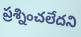
ప్రశ్నించలేదని